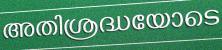
അതിശ്രദ്ധയോടെ